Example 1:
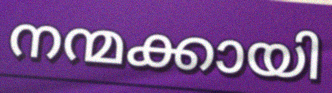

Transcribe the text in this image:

നന്മക്കായി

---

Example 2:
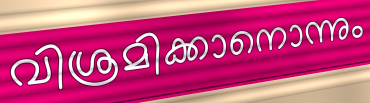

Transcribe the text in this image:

വിശ്രമിക്കാനൊന്നും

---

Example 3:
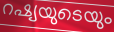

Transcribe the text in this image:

റഷ്യയുടെയും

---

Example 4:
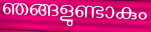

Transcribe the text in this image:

ഞങ്ങളുണ്ടാകും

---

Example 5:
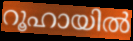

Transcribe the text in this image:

റൂഹായിൽ